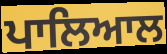
ਪਾਲਿਆਲ